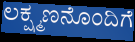
ಲಕ್ಷ್ಮಣನೊಂದಿಗೆ